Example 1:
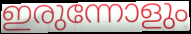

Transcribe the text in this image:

ഇരുന്നോളും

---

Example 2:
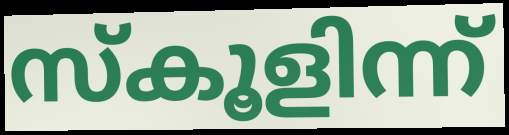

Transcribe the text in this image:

സ്കൂളിന്ന്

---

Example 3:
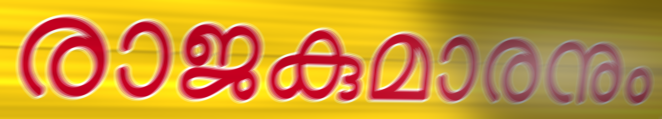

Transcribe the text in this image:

രാജകുമാരനും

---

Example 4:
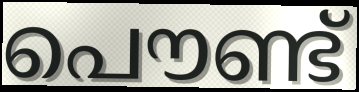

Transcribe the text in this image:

പൌണ്ട്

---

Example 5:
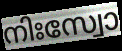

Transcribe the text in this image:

നിഃസ്വോ